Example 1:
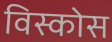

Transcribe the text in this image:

विस्कोस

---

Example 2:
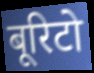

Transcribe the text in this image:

बूरिटो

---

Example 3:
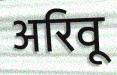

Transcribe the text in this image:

अरिवू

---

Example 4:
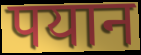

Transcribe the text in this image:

पयान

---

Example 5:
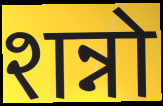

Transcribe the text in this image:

शन्नो